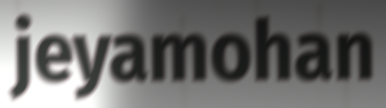
jeyamohan